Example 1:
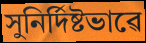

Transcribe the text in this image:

সুনিৰ্দিষ্টভাৱে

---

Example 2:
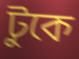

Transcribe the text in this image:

টুকে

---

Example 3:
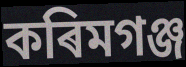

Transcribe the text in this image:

কৰিমগঞ্জ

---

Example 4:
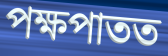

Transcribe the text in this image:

পক্ষপাতত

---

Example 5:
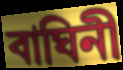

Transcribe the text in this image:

বাঘিনী